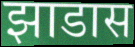
झाडास